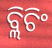
ବ୍ଲିଚିଂ